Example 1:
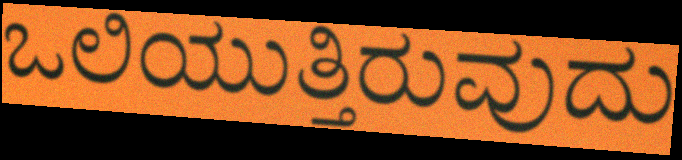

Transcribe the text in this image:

ಒಲಿಯುತ್ತಿರುವುದು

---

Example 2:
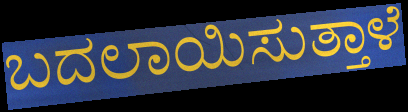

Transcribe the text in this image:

ಬದಲಾಯಿಸುತ್ತಾಳೆ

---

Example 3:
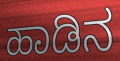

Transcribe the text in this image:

ಹಾಡಿನ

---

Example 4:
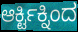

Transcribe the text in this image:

ಆರ್ಕ್ಟಿಕ್ನಿಂದ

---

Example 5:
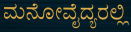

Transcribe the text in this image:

ಮನೋವೈದ್ಯರಲ್ಲಿ